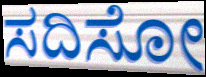
ಸದಿಸೋ